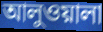
আলুওয়ালা